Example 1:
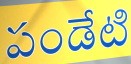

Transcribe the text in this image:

పండేటి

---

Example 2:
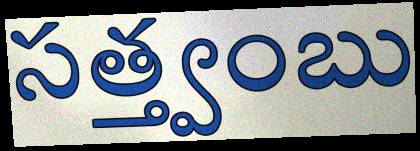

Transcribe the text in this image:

సత్త్వంబు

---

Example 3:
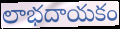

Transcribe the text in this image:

లాభదాయకం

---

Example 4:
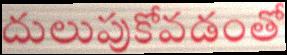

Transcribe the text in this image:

దులుపుకోవడంతో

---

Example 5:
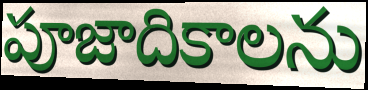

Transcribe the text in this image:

పూజాదికాలను